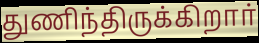
துணிந்திருக்கிறார்